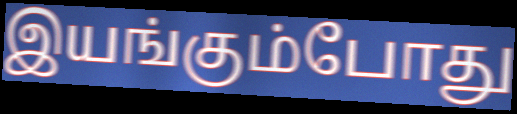
இயங்கும்போது